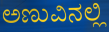
ಅಣುವಿನಲ್ಲಿ